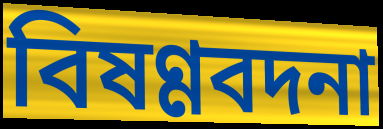
বিষণ্ণবদনা